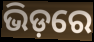
ଭିଡ଼ରେ